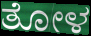
ತೋಳ